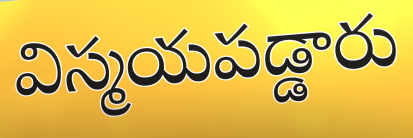
విస్మయపడ్డారు